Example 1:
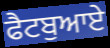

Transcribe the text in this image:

ਫੈਟਬੁਆਏ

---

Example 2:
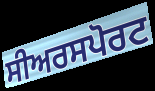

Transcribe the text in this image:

ਸੀਅਰਸਪੋਰਟ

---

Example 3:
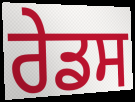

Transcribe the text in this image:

ਰੇਡਸ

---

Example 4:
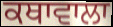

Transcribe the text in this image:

ਕਥਾਵਾਲਾ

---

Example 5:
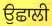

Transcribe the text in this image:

ਉਛਾਲੀ